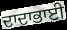
ਦਾਦਾਭਾਈ